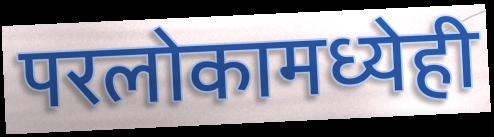
परलोकामध्येही